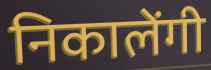
निकालेंगी